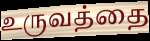
உருவத்தை